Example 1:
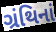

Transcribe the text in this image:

ગ્રંથિનાં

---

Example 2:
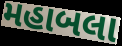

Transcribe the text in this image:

મહાબલા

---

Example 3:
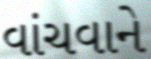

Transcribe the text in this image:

વાંચવાને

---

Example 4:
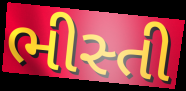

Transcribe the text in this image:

ભીસ્તી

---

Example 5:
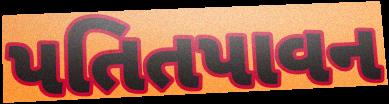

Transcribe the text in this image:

પતિતપાવન